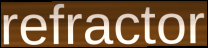
refractor